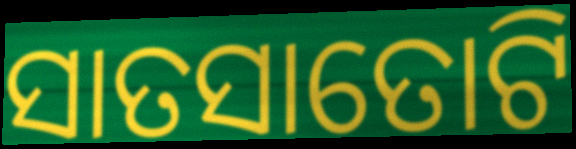
ସାତସାତୋଟି